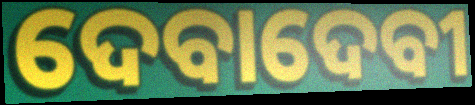
ଦେବାଦେବୀ